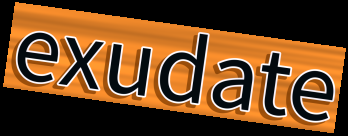
exudate